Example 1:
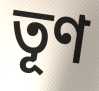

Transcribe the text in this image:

তূণ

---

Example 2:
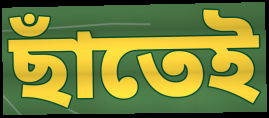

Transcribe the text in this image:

ছাঁতেই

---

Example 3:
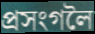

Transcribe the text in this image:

প্ৰসংগলৈ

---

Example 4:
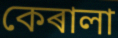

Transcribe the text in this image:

কেৰালা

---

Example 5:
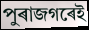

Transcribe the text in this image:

পুৰাজগৰেই